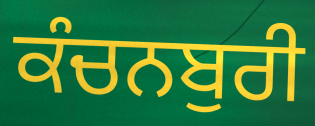
ਕੰਚਨਬੁਰੀ